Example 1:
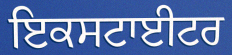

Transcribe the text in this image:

ਇਕਸਟਾਈਟਰ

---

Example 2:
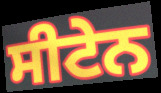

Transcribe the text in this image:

ਸੀਟੇਨ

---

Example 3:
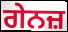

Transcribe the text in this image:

ਗੇਨਜ਼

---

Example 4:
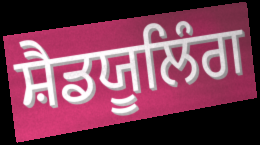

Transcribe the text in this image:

ਸ਼ੈਡਯੂਲਿੰਗ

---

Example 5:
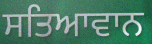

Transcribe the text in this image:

ਸਤਿਆਵਾਨ